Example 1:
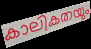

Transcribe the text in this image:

കാലികതയും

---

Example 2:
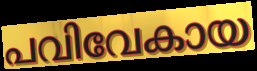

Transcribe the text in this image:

പവിവേകായ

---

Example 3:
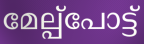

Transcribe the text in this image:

മേല്പ്പോട്ട്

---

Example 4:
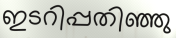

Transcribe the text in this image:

ഇടറിപ്പതിഞ്ഞു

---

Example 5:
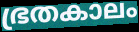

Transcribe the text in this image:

ഭ്രതകാലം